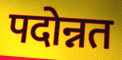
पदोन्नत